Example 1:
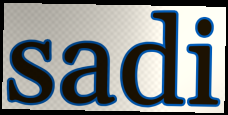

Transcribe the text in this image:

sadi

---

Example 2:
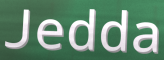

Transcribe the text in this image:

Jedda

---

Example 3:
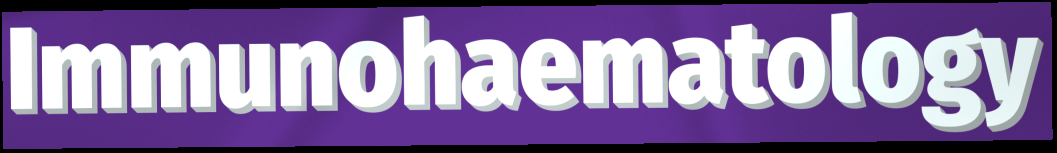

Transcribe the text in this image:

Immunohaematology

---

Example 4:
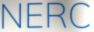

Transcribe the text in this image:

NERC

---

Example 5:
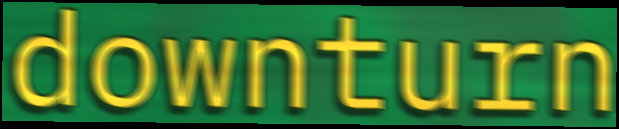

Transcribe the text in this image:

downturn